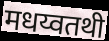
मधय्वतथी